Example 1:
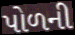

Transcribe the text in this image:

પોળની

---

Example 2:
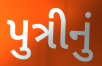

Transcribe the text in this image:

પુત્રીનું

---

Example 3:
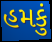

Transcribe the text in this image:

હમકું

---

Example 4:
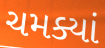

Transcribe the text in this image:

ચમક્યાં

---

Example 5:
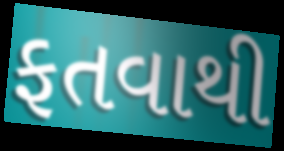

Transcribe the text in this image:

ફતવાથી